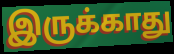
இருக்காது